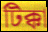
টিক্কা